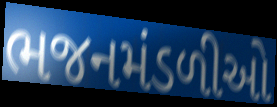
ભજનમંડળીઓ